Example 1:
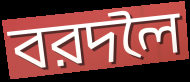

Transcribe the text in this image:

বরদলৈ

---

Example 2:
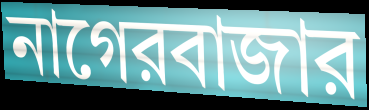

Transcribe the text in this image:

নাগেরবাজার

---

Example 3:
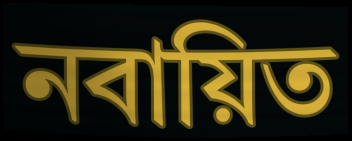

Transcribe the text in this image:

নবায়িত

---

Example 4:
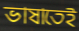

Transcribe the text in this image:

ভাষাতেই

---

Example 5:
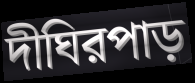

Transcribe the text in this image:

দীঘিরপাড়